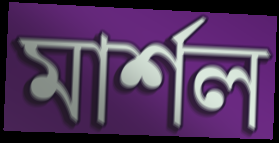
মার্শল